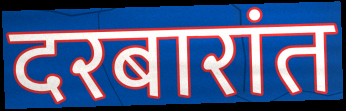
दरबारांत